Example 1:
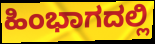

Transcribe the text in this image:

ಹಿಂಭಾಗದಲ್ಲಿ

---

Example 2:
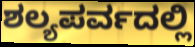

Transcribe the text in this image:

ಶಲ್ಯಪರ್ವದಲ್ಲಿ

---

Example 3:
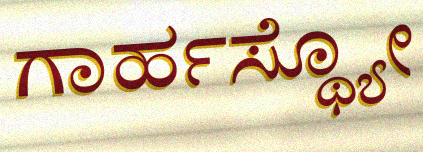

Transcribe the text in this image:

ಗಾರ್ಹಸ್ಥ್ಯೋ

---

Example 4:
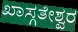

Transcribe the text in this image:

ಖಾಸ್ಗತೇಶ್ವರ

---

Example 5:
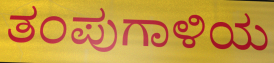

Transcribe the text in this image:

ತಂಪುಗಾಳಿಯ